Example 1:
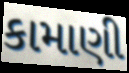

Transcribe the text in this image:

કામાણી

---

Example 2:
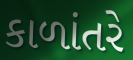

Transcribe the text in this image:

કાળાંતરે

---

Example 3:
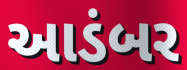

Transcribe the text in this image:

આડંબર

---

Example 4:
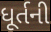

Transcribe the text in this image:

ધૂર્તની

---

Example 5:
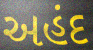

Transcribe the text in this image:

અહંદ